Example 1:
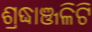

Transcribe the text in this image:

ଶ୍ରଦ୍ଧାଞ୍ଜଳିଟି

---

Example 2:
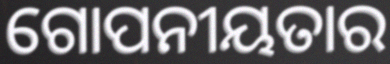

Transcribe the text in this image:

ଗୋପନୀୟତାର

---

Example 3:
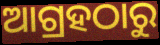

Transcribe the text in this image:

ଆଗ୍ରହଠାରୁ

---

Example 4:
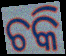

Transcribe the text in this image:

ଚକି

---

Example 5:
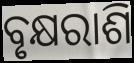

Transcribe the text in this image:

ବୃକ୍ଷରାଶି